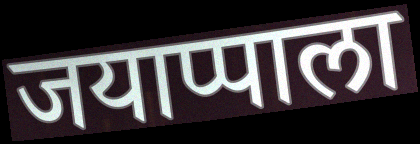
जयाप्पाला